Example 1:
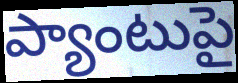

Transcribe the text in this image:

ప్యాంటుపై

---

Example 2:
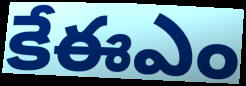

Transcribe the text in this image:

కేఈఎం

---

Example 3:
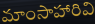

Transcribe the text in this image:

మాంసాహారివి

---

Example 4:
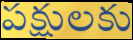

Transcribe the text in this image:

పక్షులకు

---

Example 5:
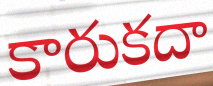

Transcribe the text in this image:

కారుకదా